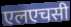
एलएचसी